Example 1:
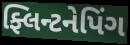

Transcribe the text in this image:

ફ્લિન્ટનેપિંગ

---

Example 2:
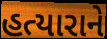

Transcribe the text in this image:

હત્યારાને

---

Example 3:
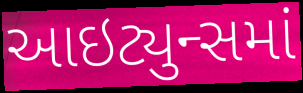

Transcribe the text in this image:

આઇટ્યુન્સમાં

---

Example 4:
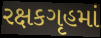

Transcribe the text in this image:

રક્ષકગૃહમાં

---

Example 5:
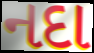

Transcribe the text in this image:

નદા